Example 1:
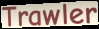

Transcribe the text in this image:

Trawler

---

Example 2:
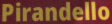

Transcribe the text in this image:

Pirandello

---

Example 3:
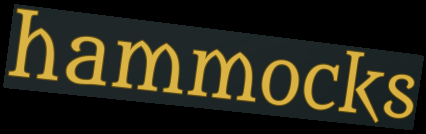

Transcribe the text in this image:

hammocks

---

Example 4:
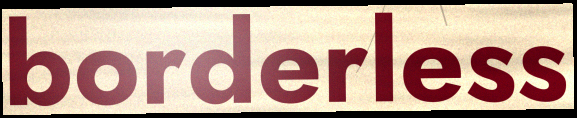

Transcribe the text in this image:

borderless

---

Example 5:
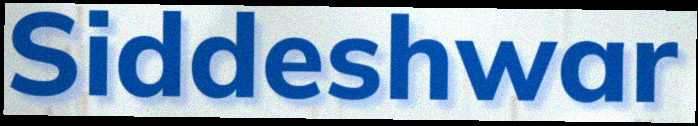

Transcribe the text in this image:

Siddeshwar